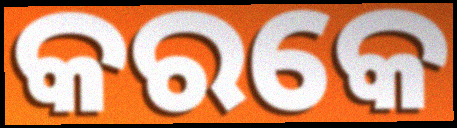
କରକେ